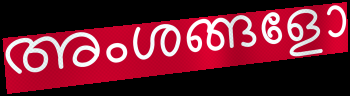
അംശങ്ങളോ